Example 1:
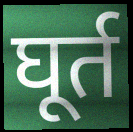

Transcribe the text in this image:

घूर्त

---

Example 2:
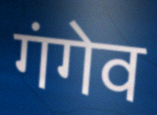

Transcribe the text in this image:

गंगेव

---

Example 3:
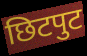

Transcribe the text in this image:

छिटपुट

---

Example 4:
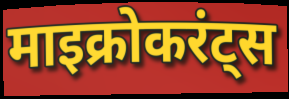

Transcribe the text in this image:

माइक्रोकरंट्स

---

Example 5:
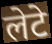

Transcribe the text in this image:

लेटे